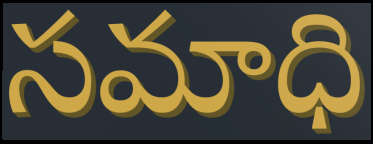
సమాధి